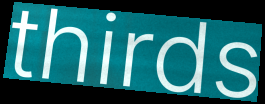
thirds